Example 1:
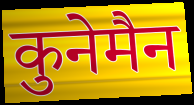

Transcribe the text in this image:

कुनेमैन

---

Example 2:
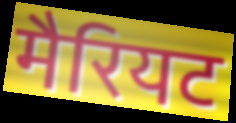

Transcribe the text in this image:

मैरियट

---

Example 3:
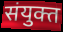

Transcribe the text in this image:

संयुक्‍त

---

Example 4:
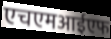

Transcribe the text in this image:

एचएमआईएफ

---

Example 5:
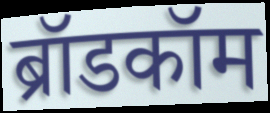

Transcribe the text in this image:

ब्रॉडकॉम